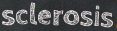
sclerosis